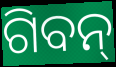
ଗିବନ୍